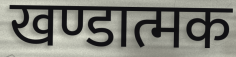
खण्डात्मक